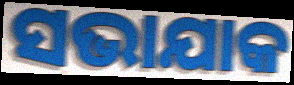
ସଭାଯାକ